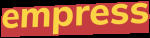
empress